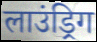
लाउंड्रिग